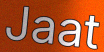
Jaat